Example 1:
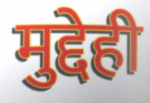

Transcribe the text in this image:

मुद्देही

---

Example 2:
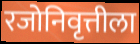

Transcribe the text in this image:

रजोनिवृत्तीला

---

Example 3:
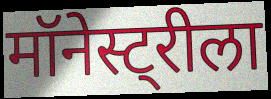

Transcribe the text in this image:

मॉनेस्ट्रीला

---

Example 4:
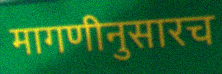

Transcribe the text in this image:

मागणीनुसारच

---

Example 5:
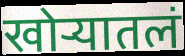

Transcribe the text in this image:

खोऱ्यातलं